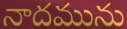
నాదమును